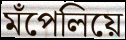
মঁপেলিয়ে